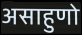
असाहुणो